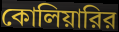
কোলিয়ারির